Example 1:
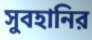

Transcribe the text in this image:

সুবহানির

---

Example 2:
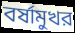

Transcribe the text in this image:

বর্ষামুখর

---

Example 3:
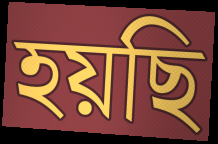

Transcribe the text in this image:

হয়ছি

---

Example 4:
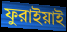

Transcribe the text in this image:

ফুরাইয়াই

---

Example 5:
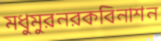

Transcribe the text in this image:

মধুমুরনরকবিনাশন